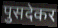
पुसदेकर